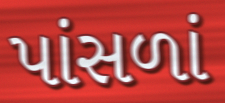
પાંસળાં